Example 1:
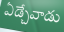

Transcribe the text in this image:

ఏడ్చేవాడు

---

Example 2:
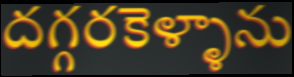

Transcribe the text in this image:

దగ్గరకెళ్ళాను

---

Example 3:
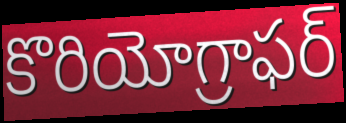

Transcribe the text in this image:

కొరియోగ్రాఫర్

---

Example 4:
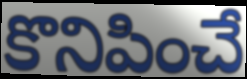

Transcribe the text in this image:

కొనిపించే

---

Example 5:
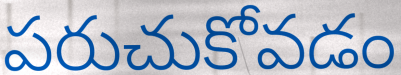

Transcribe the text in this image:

పరుచుకోవడం